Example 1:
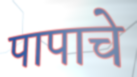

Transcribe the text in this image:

पापाचे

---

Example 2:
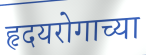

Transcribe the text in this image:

हृदयरोगाच्या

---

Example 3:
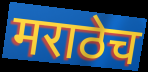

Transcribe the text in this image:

मराठेच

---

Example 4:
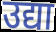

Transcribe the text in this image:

उद्या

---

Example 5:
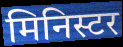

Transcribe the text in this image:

मिनिस्टर